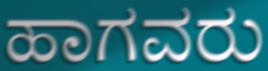
ಹಾಗವರು